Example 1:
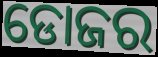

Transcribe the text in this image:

ଡୋଜର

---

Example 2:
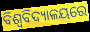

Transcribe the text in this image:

ବିଶ୍ବବିଦ୍ୟାଳୟରେ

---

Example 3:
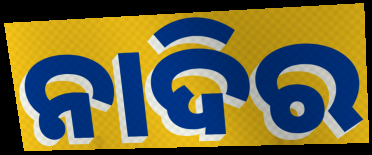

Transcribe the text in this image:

ନାଦିର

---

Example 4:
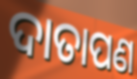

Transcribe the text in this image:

ଦାତାପଣ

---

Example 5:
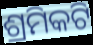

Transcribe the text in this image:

ଶ୍ରମିକଟି